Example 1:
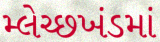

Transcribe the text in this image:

મ્લેચ્છખંડમાં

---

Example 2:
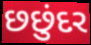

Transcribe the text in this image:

છછુંદર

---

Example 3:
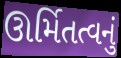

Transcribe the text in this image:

ઊર્મિતત્વનું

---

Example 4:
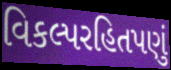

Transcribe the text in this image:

વિકલ્પરહિતપણું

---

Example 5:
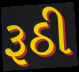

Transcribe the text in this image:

રૂઠી